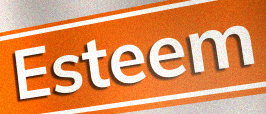
Esteem